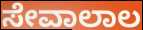
ಸೇವಾಲಾಲ